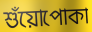
শুঁয়োপোকা